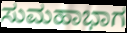
ಸುಮಹಾಭಾಗ